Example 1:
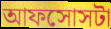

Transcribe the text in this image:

আফসোসটা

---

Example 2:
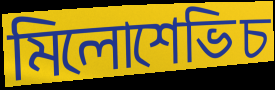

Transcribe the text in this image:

মিলোশেভিচ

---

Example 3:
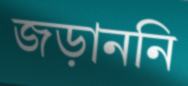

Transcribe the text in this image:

জড়াননি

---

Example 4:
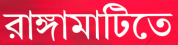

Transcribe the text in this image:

রাঙ্গামাটিতে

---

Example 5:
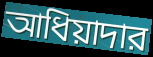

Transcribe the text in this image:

আধিয়াদার